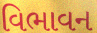
વિભાવન